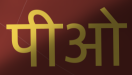
पीओ